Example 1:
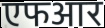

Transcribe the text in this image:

एफआर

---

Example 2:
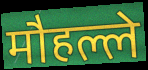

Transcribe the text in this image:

मौहल्ले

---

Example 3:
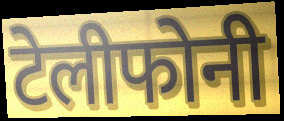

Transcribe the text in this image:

टेलीफोनी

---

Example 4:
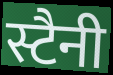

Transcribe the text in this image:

स्टैनी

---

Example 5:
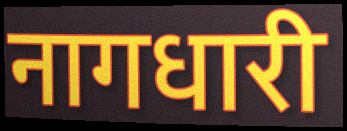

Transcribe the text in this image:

नागधारी